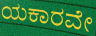
ಯಕಾರವೇ